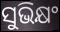
ସୁଭିକ୍ଷଂ